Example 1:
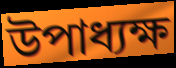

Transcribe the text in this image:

উপাধ্যক্ষ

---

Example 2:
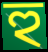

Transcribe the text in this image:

হু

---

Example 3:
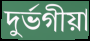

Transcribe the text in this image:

দুৰ্ভগীয়া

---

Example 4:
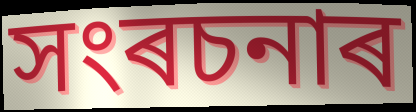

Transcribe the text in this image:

সংৰচনাৰ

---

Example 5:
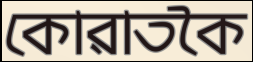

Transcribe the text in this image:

কোৱাতকৈ